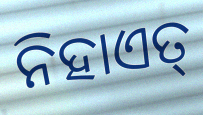
ନିହାଏତ୍